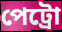
পেট্রো